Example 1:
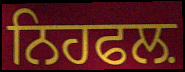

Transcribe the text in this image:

ਨਿਹਫਲ਼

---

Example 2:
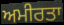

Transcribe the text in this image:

ਅਮੀਰਤਾ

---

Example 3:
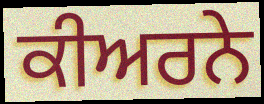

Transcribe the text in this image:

ਕੀਅਰਨੇ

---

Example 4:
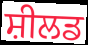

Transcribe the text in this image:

ਸ਼ੀਲਡ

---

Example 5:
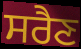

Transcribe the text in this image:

ਸਰੈਣ